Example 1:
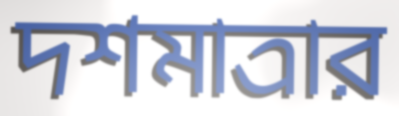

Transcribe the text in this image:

দশমাত্রার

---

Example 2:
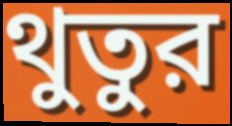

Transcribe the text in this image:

থুতুর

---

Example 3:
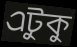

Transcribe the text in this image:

এটুকু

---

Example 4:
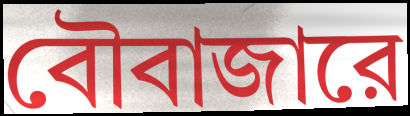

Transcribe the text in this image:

বৌবাজারে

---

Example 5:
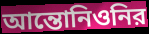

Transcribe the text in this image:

আন্তোনিওনির